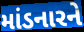
માંડનારને